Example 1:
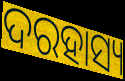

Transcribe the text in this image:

ଦରହାସ୍ୟ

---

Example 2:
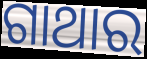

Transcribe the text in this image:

ଗାଥାର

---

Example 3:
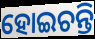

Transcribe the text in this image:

ହୋଇଚନ୍ତି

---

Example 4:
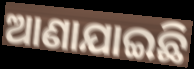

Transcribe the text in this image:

ଆଣାଯାଇଛି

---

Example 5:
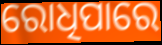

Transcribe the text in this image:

ରୋଧିପାରେ